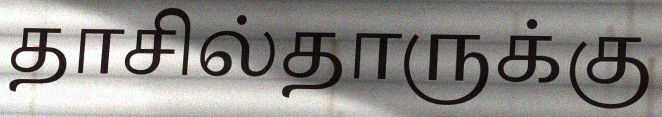
தாசில்தாருக்கு